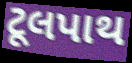
ટૂલપાથ